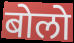
बोलो